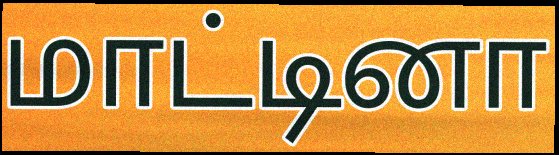
மாட்டினா